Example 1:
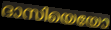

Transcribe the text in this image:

ദാസിയെയോ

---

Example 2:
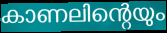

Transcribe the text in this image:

കാണലിന്റെയും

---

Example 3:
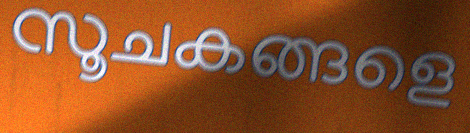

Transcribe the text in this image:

സൂചകങ്ങളെ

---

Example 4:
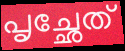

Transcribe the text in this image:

പൃച്ഛേത്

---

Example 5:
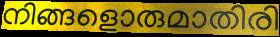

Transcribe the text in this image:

നിങ്ങളൊരുമാതിരി